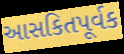
આસકિતપૂર્વક